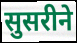
सुसरीने